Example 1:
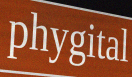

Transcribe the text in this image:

phygital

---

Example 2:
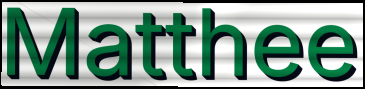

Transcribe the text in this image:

Matthee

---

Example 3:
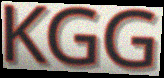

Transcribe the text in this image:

KGG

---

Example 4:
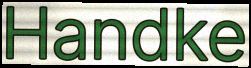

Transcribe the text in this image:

Handke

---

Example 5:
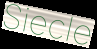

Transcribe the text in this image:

Siecle